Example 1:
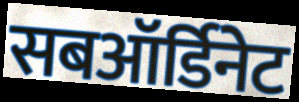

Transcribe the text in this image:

सबऑर्डिनेट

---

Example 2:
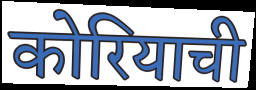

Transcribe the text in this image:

कोरियाची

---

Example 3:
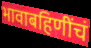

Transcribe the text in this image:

भावाबहिणींचं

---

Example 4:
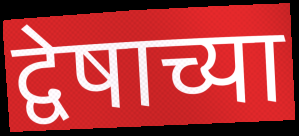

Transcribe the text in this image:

द्वेषाच्या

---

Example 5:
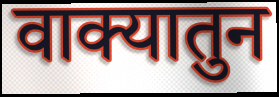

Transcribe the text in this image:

वाक्यातुन